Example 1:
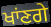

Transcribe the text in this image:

ਖਾਂਣਗੇ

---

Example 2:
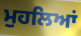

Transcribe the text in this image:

ਮੁਹਲਿਆਂ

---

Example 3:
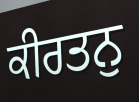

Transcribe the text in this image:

ਕੀਰਤਨੁ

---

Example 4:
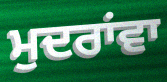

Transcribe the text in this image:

ਮੁਦਰਾਂਵਾ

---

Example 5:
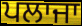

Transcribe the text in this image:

ਪਲਾਜਾ